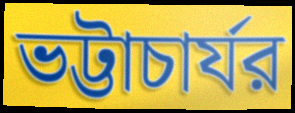
ভট্টাচার্যর